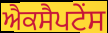
ਐਕਸੈਪਟੇਂਸ